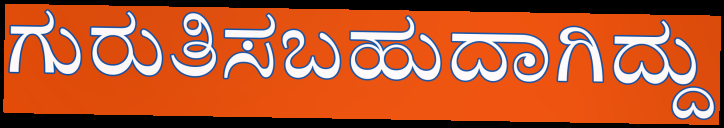
ಗುರುತಿಸಬಹುದಾಗಿದ್ದು